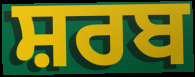
ਸ਼ਰਬ